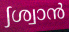
ഽശ്വാൻ